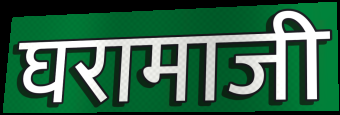
घरामाजी